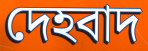
দেহবাদ